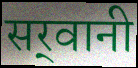
सर्वानी